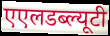
एएलडब्ल्यूटी